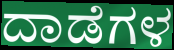
ದಾಡೆಗಳ